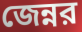
জেন্নর